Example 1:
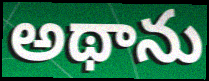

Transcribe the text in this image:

అథాను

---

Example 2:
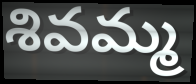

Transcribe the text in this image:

శివమ్మ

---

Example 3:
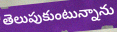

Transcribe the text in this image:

తెలుపుకుంటున్నాను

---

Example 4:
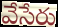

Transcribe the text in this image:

వేసేరు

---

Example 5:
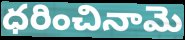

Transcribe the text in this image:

ధరించినామె